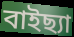
বাইছ্যা